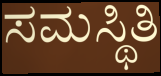
ಸಮಸ್ಥಿತಿ